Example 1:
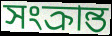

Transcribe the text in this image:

সংক্ৰান্ত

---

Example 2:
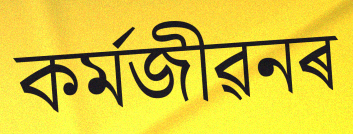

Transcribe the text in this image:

কৰ্মজীৱনৰ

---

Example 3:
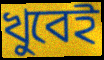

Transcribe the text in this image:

খুবেই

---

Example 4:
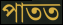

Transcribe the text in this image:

পাতত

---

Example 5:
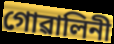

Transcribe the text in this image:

গোৱালিনী